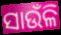
ସାଉଁଳି